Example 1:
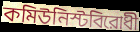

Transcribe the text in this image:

কমিউনিস্টবিরোধী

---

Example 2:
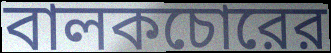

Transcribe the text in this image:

বালকচোরের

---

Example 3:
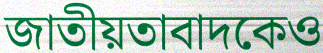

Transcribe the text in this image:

জাতীয়তাবাদকেও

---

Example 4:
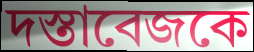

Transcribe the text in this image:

দস্তাবেজকে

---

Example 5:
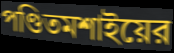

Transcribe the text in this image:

পণ্ডিতমশাইয়ের